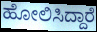
ಹೋಲಿಸಿದ್ದಾರೆ